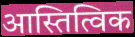
आस्तित्विक